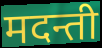
मदन्ती